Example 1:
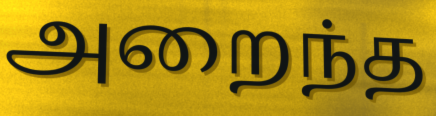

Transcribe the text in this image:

அறைந்த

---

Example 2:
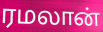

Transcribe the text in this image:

ரமலான்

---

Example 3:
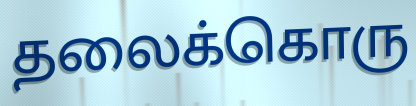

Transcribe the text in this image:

தலைக்கொரு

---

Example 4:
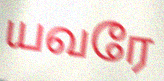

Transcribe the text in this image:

யவரே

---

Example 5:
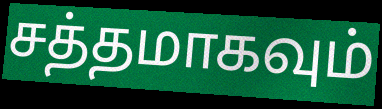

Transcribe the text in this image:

சத்தமாகவும்